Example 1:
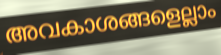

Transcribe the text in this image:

അവകാശങ്ങളെല്ലാം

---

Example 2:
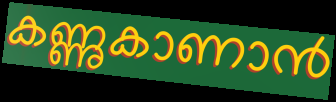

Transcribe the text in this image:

കണ്ണുകാണാൻ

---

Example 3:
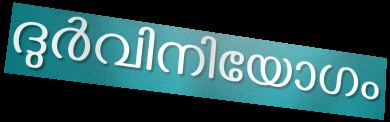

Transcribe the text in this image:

ദുർവിനിയോഗം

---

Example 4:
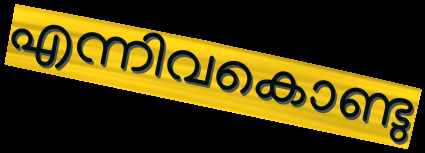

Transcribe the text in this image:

എന്നിവകൊണ്ടു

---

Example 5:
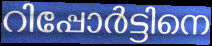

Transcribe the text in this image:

റിപ്പോർട്ടിനെ